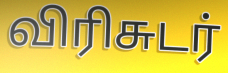
விரிசுடர்